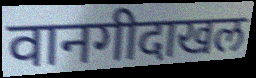
वानगीदाखल